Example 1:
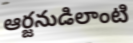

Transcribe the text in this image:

ఆర్జనుడిలాంటి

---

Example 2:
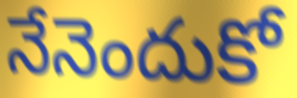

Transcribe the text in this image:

నేనెందుకో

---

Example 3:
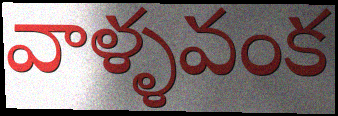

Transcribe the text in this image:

వాళ్ళవంక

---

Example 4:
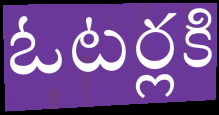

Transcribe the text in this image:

ఓటర్లకి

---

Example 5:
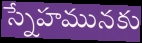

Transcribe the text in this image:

స్నేహమునకు